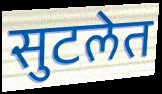
सुटलेत